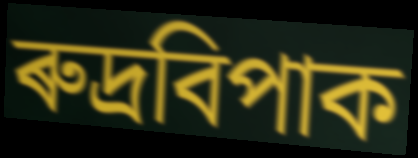
ৰুদ্ৰবিপাক